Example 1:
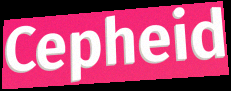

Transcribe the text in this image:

Cepheid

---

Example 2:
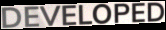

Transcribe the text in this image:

DEVELOPED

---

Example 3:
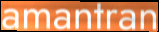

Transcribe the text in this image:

amantran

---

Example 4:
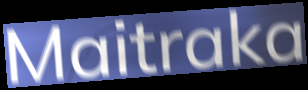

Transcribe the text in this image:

Maitraka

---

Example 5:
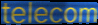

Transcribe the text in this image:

telecom